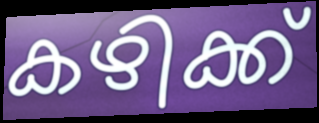
കഴിക്ക്